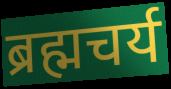
ब्रह्मचर्य